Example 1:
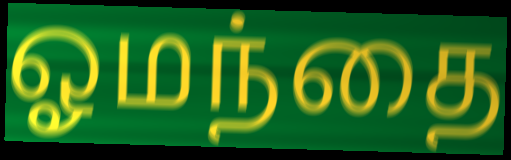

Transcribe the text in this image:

ஓமந்தை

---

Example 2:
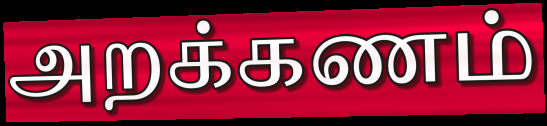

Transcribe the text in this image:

அறக்கணம்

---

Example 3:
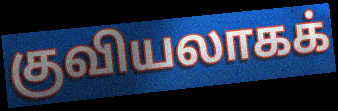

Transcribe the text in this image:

குவியலாகக்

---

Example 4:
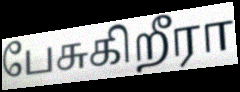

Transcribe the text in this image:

பேசுகிறீரா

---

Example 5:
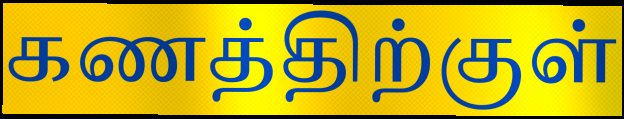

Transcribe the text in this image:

கணத்திற்குள்